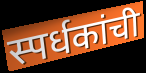
स्पर्धकांची